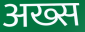
अख्स